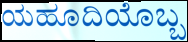
ಯಹೂದಿಯೊಬ್ಬ